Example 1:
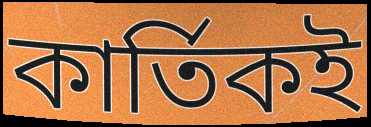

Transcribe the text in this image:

কার্তিকই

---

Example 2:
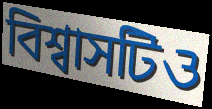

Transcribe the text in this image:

বিশ্বাসটিও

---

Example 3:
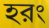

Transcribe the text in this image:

হরং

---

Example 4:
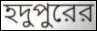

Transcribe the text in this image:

হদুপুরের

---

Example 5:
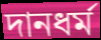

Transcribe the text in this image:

দানধর্ম